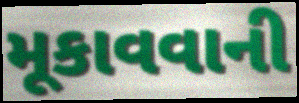
મૂકાવવાની